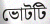
ভোটটি